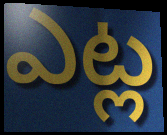
ఎట్ల